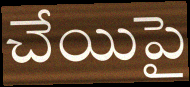
చేయిపై